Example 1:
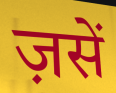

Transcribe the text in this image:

ज़सें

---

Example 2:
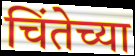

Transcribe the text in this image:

चिंतेच्या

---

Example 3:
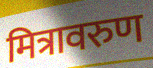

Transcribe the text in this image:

मित्रावरुण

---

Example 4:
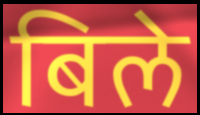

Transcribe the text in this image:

बिले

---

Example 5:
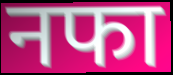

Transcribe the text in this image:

नफा